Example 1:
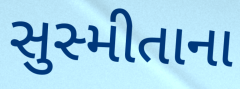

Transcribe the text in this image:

સુસ્મીતાના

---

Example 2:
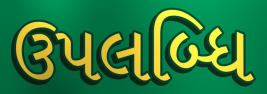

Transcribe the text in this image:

ઉપલબ્ધિ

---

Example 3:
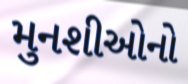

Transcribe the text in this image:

મુનશીઓનો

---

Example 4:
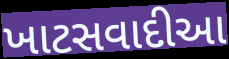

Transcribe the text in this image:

ખાટસવાદીઆ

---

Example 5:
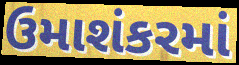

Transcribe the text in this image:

ઉમાશંકરમાં